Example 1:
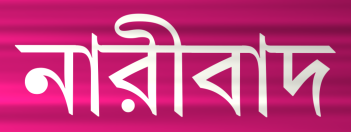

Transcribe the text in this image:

নারীবাদ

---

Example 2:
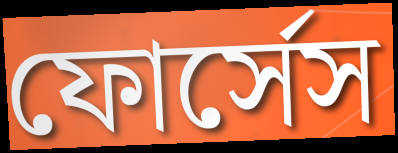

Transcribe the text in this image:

ফোর্সেস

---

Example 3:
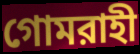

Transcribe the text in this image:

গোমরাহী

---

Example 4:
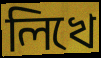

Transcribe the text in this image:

লিখে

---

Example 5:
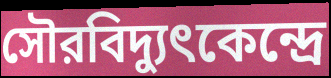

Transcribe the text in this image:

সৌরবিদ্যুৎকেন্দ্রে